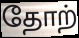
தோற்